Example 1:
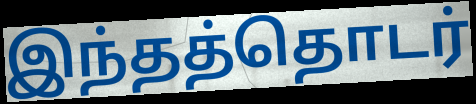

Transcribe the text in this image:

இந்தத்தொடர்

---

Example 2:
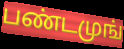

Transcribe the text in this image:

பண்டமுங்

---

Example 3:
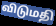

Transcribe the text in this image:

விடுமதி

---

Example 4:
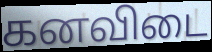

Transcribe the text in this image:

கனவிடை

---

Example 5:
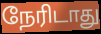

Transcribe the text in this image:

நேரிடாது